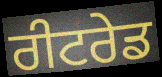
ਰੀਟਰੇਡ